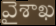
వైశాఖ